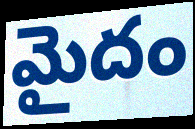
మైదం